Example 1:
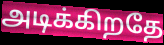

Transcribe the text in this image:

அடிக்கிறதே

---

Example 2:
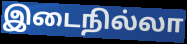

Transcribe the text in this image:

இடைநில்லா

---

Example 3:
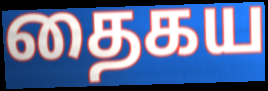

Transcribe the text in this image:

தைகய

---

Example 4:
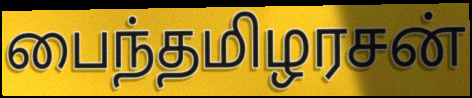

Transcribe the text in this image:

பைந்தமிழரசன்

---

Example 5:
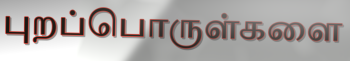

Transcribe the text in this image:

புறப்பொருள்களை